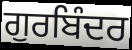
ਗੁਰਬਿੰਦਰ